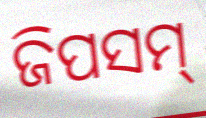
ଜିପସମ୍